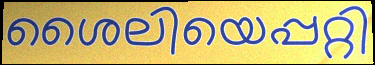
ശൈലിയെപ്പറ്റി